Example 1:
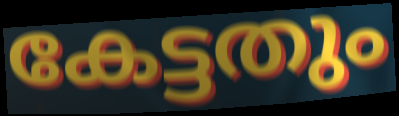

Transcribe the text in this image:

കേട്ടതും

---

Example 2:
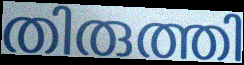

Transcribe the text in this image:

തിരുത്തി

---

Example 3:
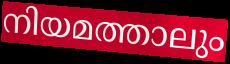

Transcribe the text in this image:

നിയമത്താലും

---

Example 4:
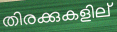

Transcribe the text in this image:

തിരക്കുകളില്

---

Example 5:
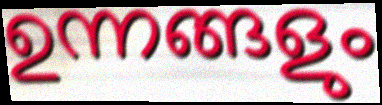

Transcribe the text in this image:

ഉന്നങ്ങളും